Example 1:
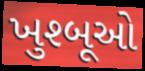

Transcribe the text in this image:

ખુશ્બૂઓ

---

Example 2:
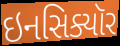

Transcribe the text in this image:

ઇનસિક્યૉર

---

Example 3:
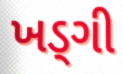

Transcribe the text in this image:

ખડ્ગી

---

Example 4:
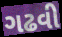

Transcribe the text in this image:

ગઢવી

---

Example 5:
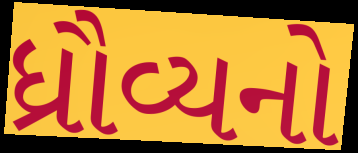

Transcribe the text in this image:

ધ્રૌવ્યનો